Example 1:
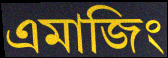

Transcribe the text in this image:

এমাজিং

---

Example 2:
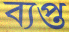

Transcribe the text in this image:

ব্যপ্ত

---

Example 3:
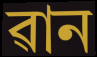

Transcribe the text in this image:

ৱান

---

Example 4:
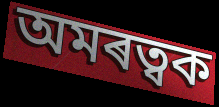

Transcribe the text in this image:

অমৰত্বক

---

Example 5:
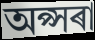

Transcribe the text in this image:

অপ্সৰা